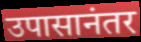
उपासानंतर